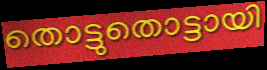
തൊട്ടുതൊട്ടായി